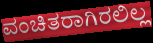
ವಂಚಿತರಾಗಿರಲಿಲ್ಲ